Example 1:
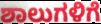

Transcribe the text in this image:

ಶಾಲುಗಳಿಗೆ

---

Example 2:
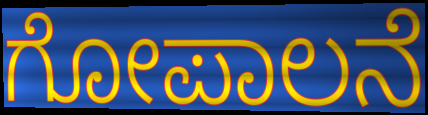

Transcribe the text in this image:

ಗೋಪಾಲನೆ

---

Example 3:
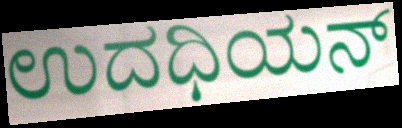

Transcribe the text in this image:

ಉದಧಿಯನ್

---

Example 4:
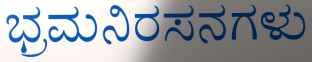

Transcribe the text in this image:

ಭ್ರಮನಿರಸನಗಳು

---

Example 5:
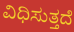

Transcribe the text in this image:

ವಿಧಿಸುತ್ತದೆ